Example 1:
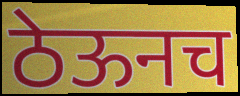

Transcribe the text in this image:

ठेऊनच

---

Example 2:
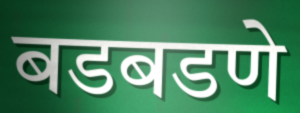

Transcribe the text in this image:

बडबडणे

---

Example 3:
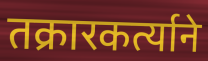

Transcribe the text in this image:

तक्रारकर्त्याने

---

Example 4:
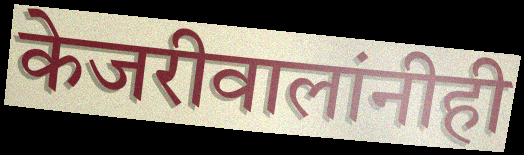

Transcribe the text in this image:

केजरीवालांनीही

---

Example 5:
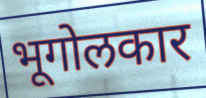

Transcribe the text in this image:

भूगोलकार